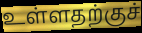
உள்ளதற்குச்